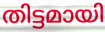
തിട്ടമായി